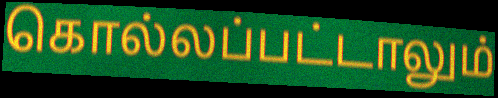
கொல்லப்பட்டாலும்